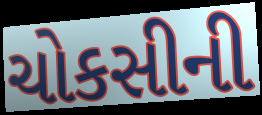
ચોકસીની